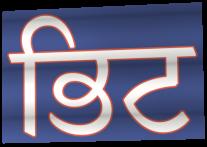
ਭਿਟ